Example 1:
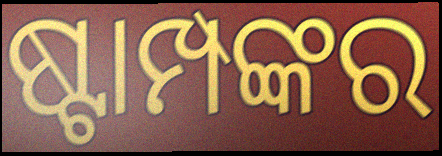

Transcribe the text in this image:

ଷ୍ଟାମ୍ପଙ୍କର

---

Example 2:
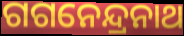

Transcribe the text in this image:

ଗଗନେନ୍ଦ୍ରନାଥ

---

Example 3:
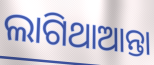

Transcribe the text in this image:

ଲାଗିଥାଆନ୍ତା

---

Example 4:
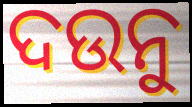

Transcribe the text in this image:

ଦଉନୁ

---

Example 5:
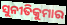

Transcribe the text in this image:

ସୁନୀତିକୁମାର